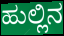
ಹುಲ್ಲಿನ